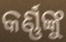
କର୍ଣ୍ଣଙ୍କୁ